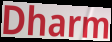
Dharm